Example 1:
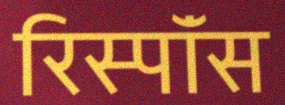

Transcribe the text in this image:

रिस्पॉंस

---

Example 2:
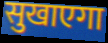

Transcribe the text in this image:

सुखाएगा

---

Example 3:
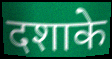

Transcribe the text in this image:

दशाके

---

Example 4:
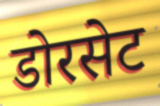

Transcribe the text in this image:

डोरसेट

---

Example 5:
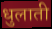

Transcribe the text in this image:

धुलाती